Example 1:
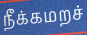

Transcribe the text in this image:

நீக்கமறச்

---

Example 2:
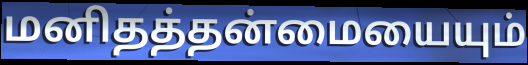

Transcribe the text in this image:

மனிதத்தன்மையையும்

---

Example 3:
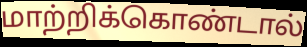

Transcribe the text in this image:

மாற்றிக்கொண்டால்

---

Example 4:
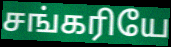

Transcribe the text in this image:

சங்கரியே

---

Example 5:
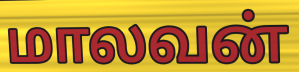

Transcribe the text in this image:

மாலவன்